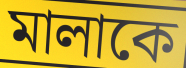
মালাকে